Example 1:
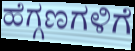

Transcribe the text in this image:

ಹೆಗ್ಗಣಗಳಿಗೆ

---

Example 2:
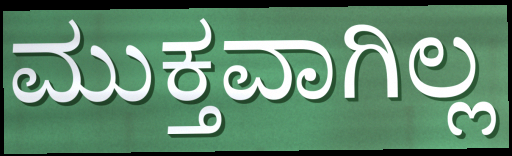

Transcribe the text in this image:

ಮುಕ್ತವಾಗಿಲ್ಲ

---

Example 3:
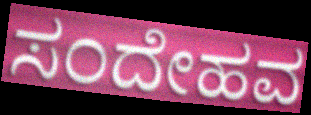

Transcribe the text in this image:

ಸಂದೇಹವ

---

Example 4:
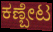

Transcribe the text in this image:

ಕಣ್ಬೇಟ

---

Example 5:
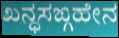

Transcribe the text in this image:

ಖನ್ಧಸಙ್ಗಹೇನ